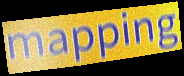
mapping